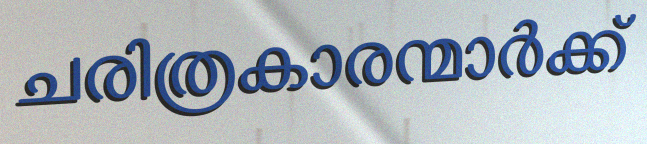
ചരിത്രകാരന്മാർക്ക്